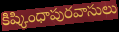
కిష్కింధాపురవాసులు